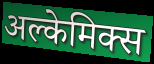
अल्केमिक्स